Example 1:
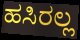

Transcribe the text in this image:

ಹಸಿರಲ್ಲ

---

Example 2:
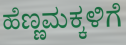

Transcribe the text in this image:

ಹೆಣ್ಣಮಕ್ಕಳಿಗೆ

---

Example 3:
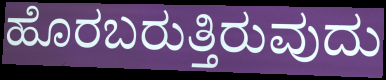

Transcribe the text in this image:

ಹೊರಬರುತ್ತಿರುವುದು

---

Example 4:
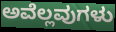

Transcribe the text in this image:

ಅವೆಲ್ಲವುಗಳು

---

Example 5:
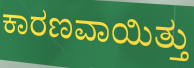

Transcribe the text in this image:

ಕಾರಣವಾಯಿತ್ತು